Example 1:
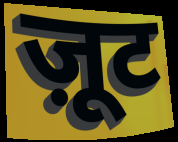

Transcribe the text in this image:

ज़ूट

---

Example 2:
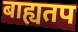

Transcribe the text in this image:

बाह्यतप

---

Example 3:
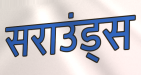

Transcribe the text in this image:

सराउंड्स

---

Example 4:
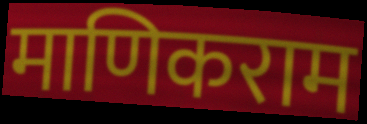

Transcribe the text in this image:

माणिकराम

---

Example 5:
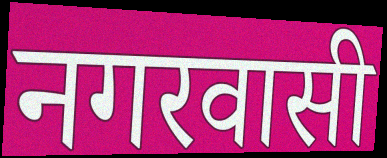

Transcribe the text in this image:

नगरवासी